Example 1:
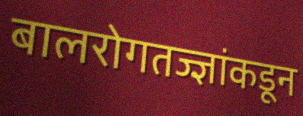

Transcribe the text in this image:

बालरोगतज्ज्ञांकडून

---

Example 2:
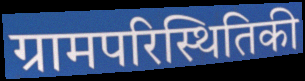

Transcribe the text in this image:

ग्रामपरिस्थितिकी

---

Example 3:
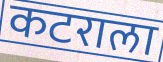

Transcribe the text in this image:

कटराला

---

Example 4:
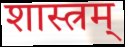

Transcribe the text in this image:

शास्त्रम्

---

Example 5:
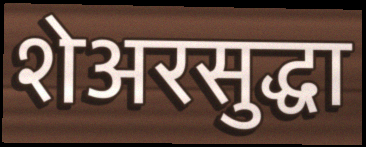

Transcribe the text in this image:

शेअरसुद्धा